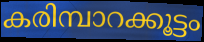
കരിമ്പാറക്കൂട്ടം